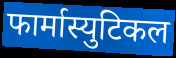
फार्मास्युटिकल